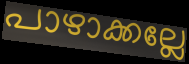
പാഴാക്കല്ലേ